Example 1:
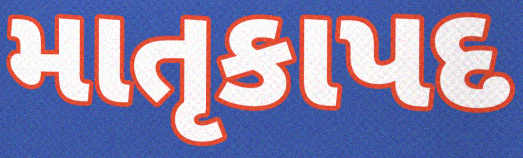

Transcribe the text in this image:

માતૃકાપદ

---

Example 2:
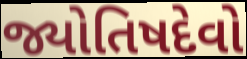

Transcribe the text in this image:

જ્યોતિષદેવો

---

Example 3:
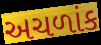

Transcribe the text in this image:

અચળાંક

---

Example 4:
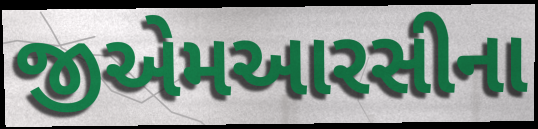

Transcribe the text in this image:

જીએમઆરસીના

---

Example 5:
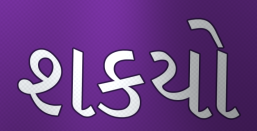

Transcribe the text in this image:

શકયો